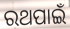
ରଥପାଇଁ